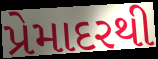
પ્રેમાદરથી